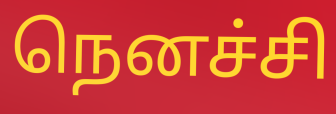
நெனச்சி